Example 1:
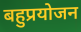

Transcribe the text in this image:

बहुप्रयोजन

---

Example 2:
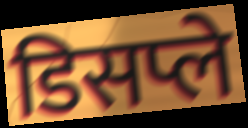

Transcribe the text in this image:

डिसप्ले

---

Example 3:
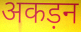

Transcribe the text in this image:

अकड़न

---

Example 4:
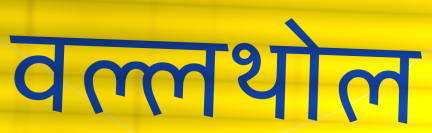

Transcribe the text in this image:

वल्लथोल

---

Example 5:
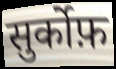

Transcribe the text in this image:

सुर्कोफ़